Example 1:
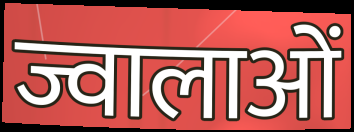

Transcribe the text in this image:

ज्वालाओं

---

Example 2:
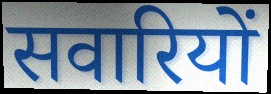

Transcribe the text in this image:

सवारियों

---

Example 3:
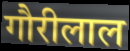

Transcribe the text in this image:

गौरीलाल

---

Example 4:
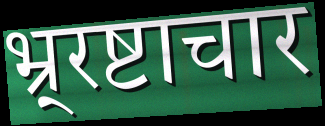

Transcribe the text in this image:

भ्र्रष्टाचार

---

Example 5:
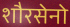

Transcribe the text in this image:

शौरसेनो